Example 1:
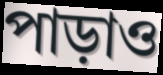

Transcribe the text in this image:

পাড়াও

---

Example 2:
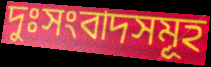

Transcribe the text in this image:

দুঃসংবাদসমূহ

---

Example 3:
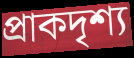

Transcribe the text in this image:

প্রাকদৃশ্য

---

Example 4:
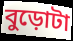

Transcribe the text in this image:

বুড়োটা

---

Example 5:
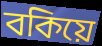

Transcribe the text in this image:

বকিয়ে